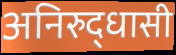
अनिरुद्धासी